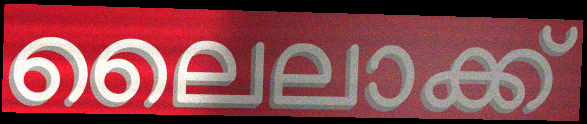
ലൈലാക്ക്